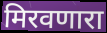
मिरवणारा